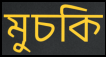
মুচকি